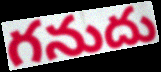
గనుదు